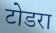
टोडरा